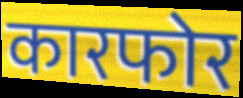
कारफोर